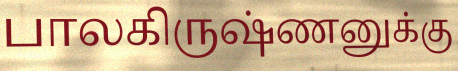
பாலகிருஷ்ணனுக்கு